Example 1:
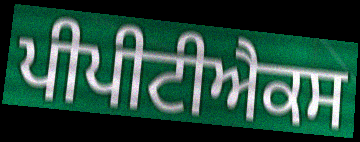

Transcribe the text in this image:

ਪੀਪੀਟੀਐਕਸ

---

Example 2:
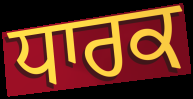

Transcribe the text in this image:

ਧਾਰਕ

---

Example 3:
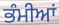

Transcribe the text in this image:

ਭੰਮੀਆਂ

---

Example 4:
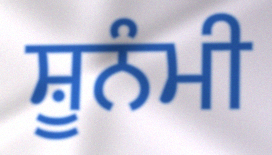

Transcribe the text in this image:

ਸ਼ੂਨੰਮੀ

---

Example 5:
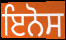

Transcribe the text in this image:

ਇਨੋਸ